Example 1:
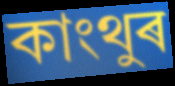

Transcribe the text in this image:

কাংথুৰ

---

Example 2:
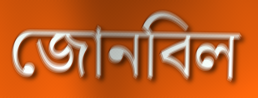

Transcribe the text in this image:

জোনবিল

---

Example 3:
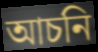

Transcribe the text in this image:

আচনি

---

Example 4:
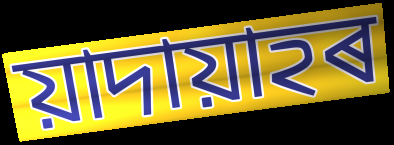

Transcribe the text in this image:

য়াদায়াহৰ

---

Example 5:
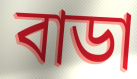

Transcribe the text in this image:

বাডা